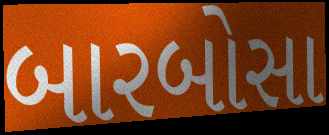
બારબોસા